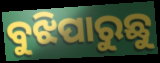
ବୁଝିପାରୁଛୁ